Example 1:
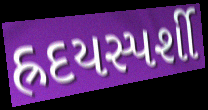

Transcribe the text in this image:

હ્રદયસ્પર્શી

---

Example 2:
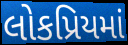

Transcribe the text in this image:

લોકપ્રિયમાં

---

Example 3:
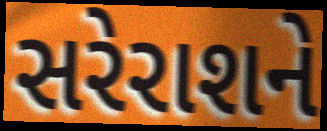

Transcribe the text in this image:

સરેરાશને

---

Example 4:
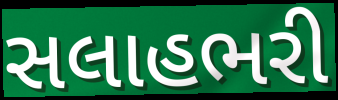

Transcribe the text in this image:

સલાહભરી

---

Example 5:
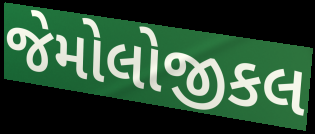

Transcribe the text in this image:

જેમોલોજીકલ